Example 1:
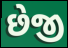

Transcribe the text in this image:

છેજી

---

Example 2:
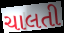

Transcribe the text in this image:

ચાલતી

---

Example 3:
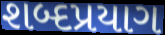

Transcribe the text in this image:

શબ્દપ્રયાગ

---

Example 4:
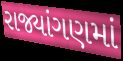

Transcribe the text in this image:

રાજ્યાંગણમાં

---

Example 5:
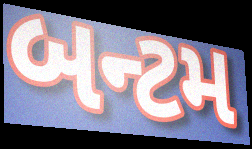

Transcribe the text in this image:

બન્ટમ